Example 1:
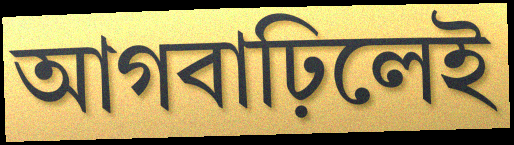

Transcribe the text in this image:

আগবাঢ়িলেই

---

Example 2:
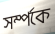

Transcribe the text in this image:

সৰ্ম্পকে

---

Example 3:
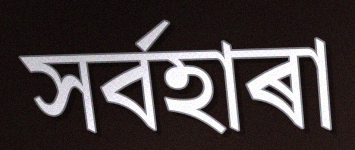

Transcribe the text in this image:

সৰ্বহাৰা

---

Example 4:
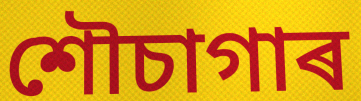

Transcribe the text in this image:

শৌচাগাৰ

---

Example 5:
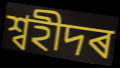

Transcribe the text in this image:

শ্বহীদৰ